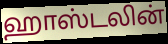
ஹாஸ்டலின்